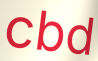
cbd